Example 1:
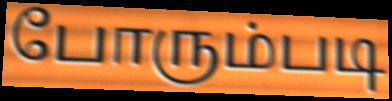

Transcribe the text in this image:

போரும்படி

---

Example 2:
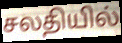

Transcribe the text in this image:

சலதியில்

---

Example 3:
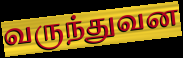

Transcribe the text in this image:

வருந்துவன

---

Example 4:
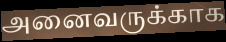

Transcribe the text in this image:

அனைவருக்காக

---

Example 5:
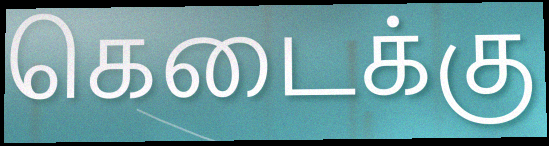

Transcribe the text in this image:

கெடைக்கு